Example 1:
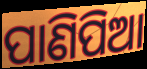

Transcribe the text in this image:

ପାଣିପିଆ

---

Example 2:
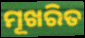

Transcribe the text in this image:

ମୂଖରିତ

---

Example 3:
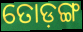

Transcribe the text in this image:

ତୋଡ଼ଙ୍ଗ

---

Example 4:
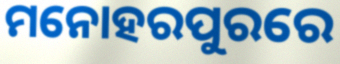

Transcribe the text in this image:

ମନୋହରପୁରରେ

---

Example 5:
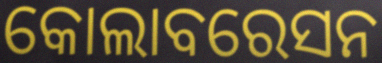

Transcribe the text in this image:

କୋଲାବରେସନ